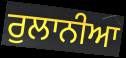
ਰੁਲਾਨੀਆ